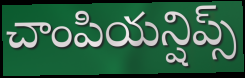
చాంపియన్షిప్స్